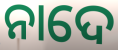
ନାଦେ